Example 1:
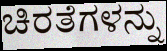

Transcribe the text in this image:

ಚಿರತೆಗಳನ್ನು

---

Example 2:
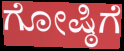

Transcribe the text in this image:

ಗೋಷ್ಠಿಗೆ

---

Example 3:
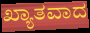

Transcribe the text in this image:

ಖ್ಯಾತವಾದ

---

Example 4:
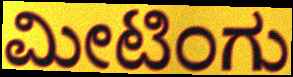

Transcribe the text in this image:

ಮೀಟಿಂಗು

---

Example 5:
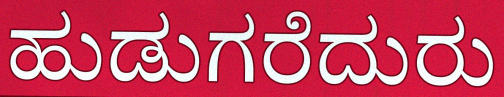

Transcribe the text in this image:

ಹುಡುಗರೆದುರು